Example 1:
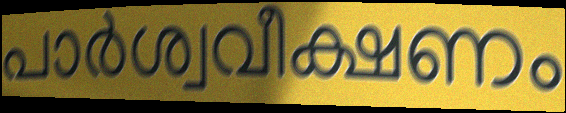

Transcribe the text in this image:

പാർശ്വവീക്ഷണം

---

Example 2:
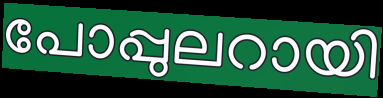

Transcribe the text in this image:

പോപ്പുലറായി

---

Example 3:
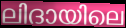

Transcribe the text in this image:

ലിദായിലെ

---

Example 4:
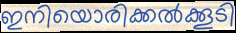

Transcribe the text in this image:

ഇനിയൊരിക്കൽക്കൂടി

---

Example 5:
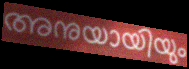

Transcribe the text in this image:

അനുയായിയും